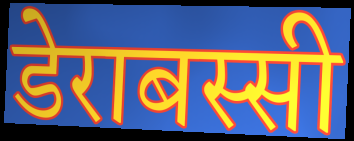
डेराबस्सी